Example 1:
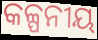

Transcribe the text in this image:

କଳ୍ପନୀୟ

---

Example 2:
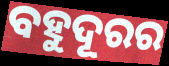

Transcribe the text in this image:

ବହୁଦୂରର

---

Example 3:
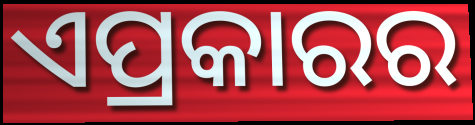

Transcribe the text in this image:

ଏପ୍ରକାରର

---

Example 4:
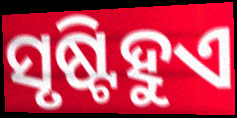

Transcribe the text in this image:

ସୃଷ୍ଟିହୁଏ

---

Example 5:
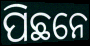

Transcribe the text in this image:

ପିଛନେ